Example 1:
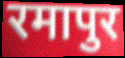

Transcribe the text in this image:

रमापुर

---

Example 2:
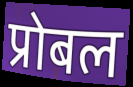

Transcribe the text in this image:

प्रोबल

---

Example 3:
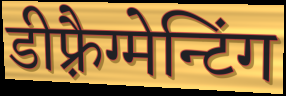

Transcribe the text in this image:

डीफ़्रैग्मेन्टिंग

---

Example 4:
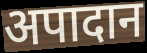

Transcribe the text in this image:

अपादान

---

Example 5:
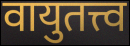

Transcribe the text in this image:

वायुतत्त्व